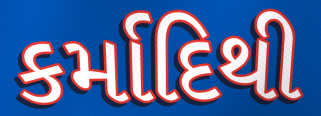
કર્માદિથી